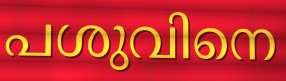
പശുവിനെ